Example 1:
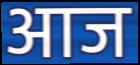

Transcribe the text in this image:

आज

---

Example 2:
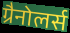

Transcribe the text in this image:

ग्रैनोलर्स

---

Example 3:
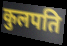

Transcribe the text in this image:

कुलपति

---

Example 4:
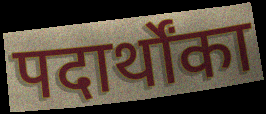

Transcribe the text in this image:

पदार्थोंका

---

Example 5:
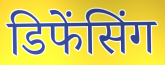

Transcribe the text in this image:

डिफेंसिंग